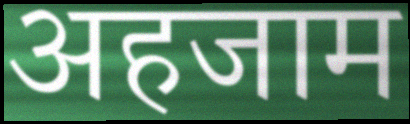
अहजाम